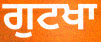
ਗੁਟਖਾ